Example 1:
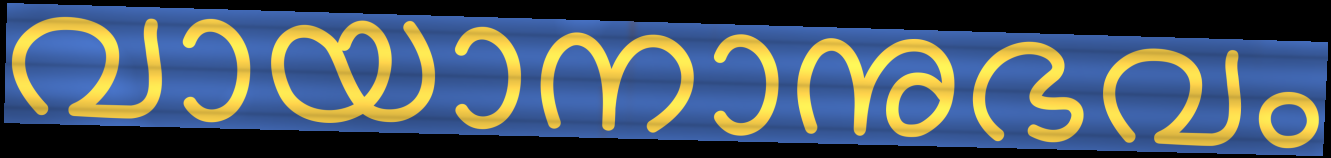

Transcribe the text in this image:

വായാനാനുഭവം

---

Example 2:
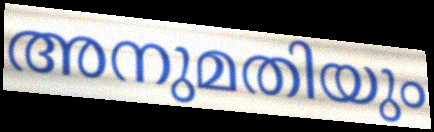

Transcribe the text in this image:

അനുമതിയും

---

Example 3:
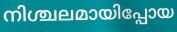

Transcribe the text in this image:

നിശ്ചലമായിപ്പോയ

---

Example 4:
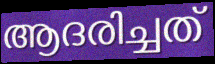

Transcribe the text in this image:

ആദരിച്ചത്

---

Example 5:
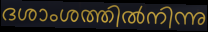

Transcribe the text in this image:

ദശാംശത്തിൽനിന്നു